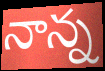
నాన్న